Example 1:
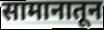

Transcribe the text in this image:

सामानातून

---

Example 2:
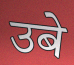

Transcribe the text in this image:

उबे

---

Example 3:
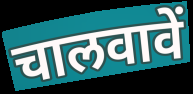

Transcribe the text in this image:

चालवावें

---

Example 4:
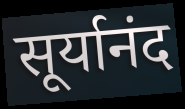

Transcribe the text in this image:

सूर्यानंद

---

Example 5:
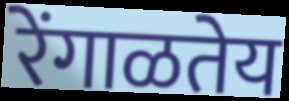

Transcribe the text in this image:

रेंगाळतेय